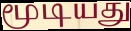
மூடியது